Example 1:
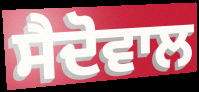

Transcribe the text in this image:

ਸੈਦੋਵਾਲ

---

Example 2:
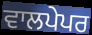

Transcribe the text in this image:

ਵਾਲਪੇਪਰ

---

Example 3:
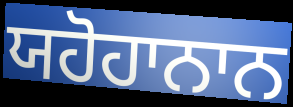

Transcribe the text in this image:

ਯਹੋਹਾਨਾਨ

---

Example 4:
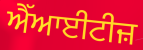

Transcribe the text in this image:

ਐੱਆਈਟੀਜ਼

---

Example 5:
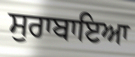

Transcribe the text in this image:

ਸੁਰਾਬਾਇਆ